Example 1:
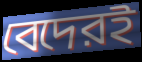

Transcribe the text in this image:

বেদেরই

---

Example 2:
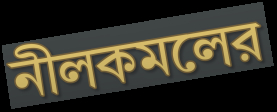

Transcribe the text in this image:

নীলকমলের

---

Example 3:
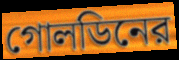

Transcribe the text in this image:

গোলডিনের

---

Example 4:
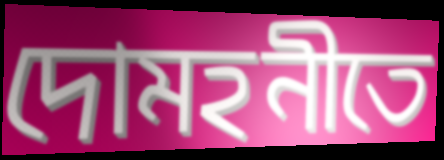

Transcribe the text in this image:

দোমহনীতে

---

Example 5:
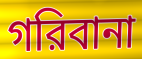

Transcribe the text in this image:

গরিবানা